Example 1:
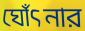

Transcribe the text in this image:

ঘোঁৎনার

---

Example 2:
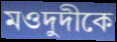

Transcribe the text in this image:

মওদুদীকে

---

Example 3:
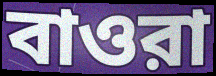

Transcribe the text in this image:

বাওরা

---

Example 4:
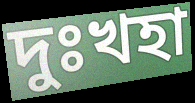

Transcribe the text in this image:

দুঃখহা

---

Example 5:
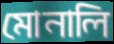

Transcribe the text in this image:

মোনালি